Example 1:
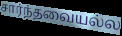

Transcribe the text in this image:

சார்ந்தவையல்ல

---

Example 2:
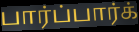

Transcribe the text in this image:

பார்ப்பார்க்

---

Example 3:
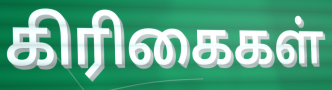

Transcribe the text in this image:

கிரிகைகள்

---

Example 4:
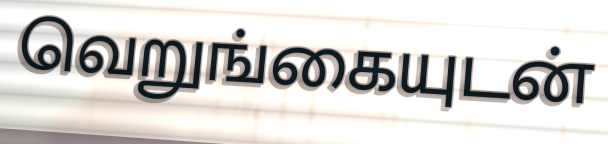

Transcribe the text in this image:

வெறுங்கையுடன்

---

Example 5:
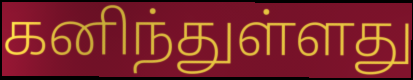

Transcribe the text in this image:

கனிந்துள்ளது